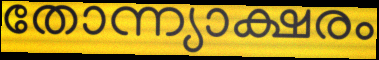
തോന്ന്യാക്ഷരം